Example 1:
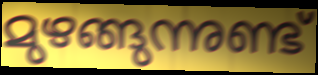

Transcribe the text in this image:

മുഴങ്ങുന്നുണ്ട്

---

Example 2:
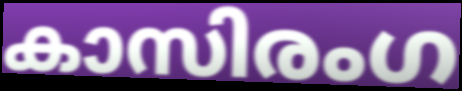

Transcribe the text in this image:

കാസിരംഗ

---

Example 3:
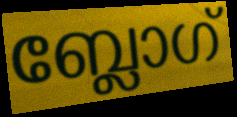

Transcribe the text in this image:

ബ്ലോഗ്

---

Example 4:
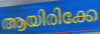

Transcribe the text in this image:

ആയിരിക്കേ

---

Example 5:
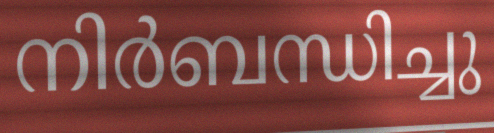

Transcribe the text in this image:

നിർബന്ധിച്ചു